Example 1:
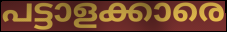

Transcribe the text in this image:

പട്ടാളക്കാരെ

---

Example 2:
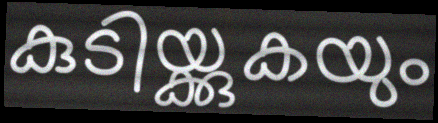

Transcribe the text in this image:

കുടിയ്ക്കുകയും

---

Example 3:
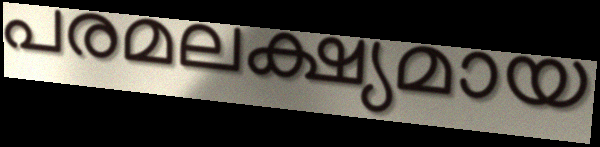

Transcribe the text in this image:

പരമലക്ഷ്യമായ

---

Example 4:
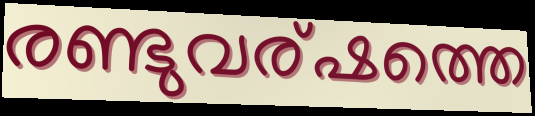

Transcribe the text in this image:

രണ്ടുവര്ഷത്തെ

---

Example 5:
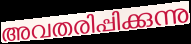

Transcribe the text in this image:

അവതരിപ്പിക്കുന്നു